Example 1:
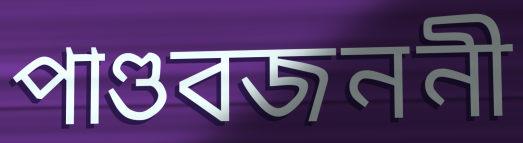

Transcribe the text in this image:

পাণ্ডবজননী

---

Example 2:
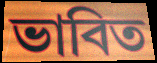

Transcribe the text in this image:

ভাবিত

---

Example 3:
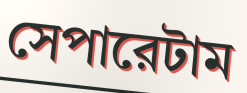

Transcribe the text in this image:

সেপারেটাম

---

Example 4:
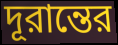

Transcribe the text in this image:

দূরান্তের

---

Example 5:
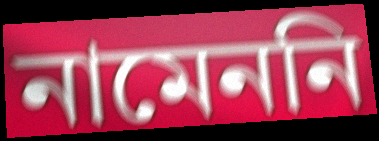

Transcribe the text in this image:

নামেননি